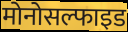
मोनोसल्फाइड